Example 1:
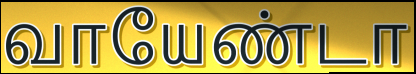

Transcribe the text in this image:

வாயேண்டா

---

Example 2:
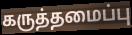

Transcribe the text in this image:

கருத்தமைப்பு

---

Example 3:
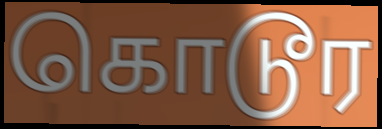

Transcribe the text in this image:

கொடூர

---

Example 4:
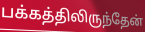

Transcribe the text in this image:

பக்கத்திலிருந்தேன்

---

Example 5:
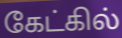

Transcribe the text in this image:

கேட்கில்